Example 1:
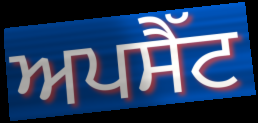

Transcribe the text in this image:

ਅਪਸੈੱਟ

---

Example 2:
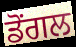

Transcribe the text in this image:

ਡੋਂਗਲ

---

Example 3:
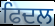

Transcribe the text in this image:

ਫਿਦਲ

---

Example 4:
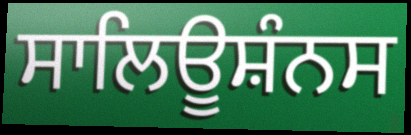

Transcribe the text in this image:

ਸਾਲਿਊਸ਼ੰਨਸ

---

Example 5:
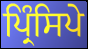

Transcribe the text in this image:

ਪ੍ਰਿੰਸਿਪੇ